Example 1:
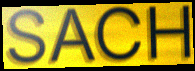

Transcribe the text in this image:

SACH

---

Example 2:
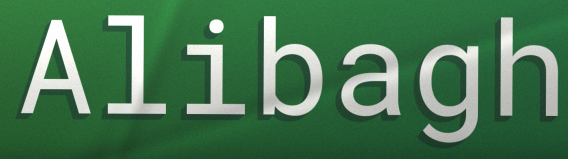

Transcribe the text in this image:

Alibagh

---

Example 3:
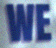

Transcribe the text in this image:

WE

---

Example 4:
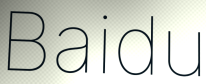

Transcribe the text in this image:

Baidu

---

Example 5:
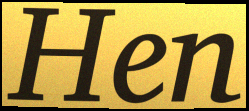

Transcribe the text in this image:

Hen